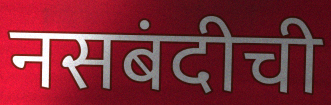
नसबंदीची